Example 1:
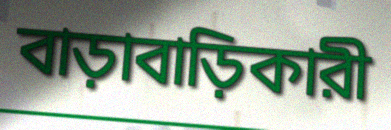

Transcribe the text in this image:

বাড়াবাড়িকারী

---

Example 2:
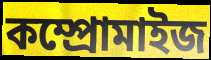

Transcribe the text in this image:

কম্প্রোমাইজ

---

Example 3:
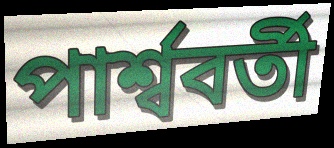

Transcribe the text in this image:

পার্শ্ববর্তী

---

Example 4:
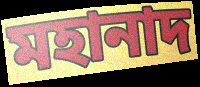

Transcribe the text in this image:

মহানাদ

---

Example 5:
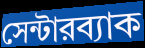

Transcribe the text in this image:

সেন্টারব্যাক